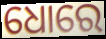
ଧୋରେ